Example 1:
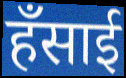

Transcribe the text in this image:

हँसाई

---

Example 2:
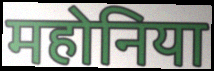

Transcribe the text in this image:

महोनिया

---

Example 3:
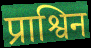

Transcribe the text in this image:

प्राश्विन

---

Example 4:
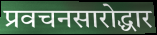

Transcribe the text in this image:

प्रवचनसारोद्धार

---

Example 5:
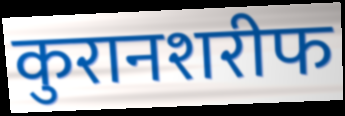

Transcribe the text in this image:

कुरानशरीफ